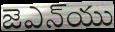
జెఎన్‌యు